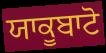
ਯਾਕੂਬਾਟੋ